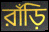
রাঁড়ি